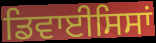
ਡਿਵਾਈਸਿਸਾਂ